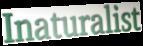
Inaturalist